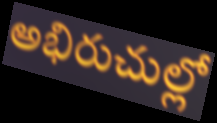
అభిరుచుల్లో